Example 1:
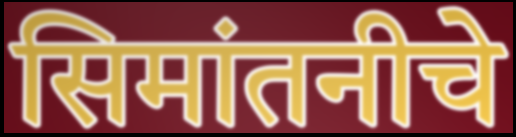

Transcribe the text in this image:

सिमांतनीचे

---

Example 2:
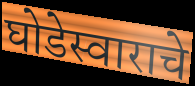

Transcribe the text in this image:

घोडेस्वाराचे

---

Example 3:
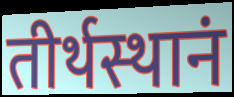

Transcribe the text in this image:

तीर्थस्थानं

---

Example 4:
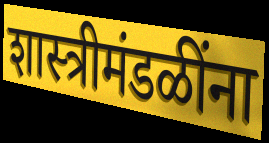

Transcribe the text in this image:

शास्त्रीमंडळींना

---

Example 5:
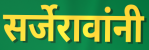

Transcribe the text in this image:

सर्जेरावांनी